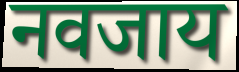
नवजाय